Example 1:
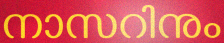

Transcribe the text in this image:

നാസറിനും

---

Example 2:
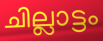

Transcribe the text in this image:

ചില്ലാട്ടം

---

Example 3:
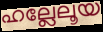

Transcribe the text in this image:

ഹല്ലേലൂയ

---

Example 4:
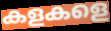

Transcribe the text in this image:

കളകളെ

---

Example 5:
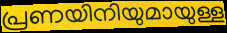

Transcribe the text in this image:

പ്രണയിനിയുമായുള്ള